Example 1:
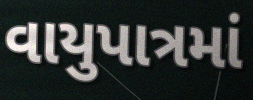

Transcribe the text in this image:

વાયુપાત્રમાં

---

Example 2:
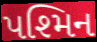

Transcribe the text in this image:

પશ્મિન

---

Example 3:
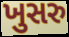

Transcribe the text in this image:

ખુસરુ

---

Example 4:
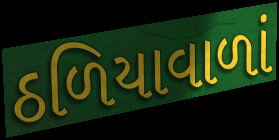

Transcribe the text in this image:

ઠળિયાવાળાં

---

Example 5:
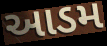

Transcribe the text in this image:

આડમ